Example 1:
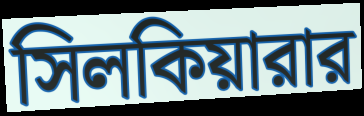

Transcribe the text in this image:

সিলকিয়ারার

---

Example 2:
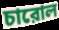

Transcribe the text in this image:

চারোল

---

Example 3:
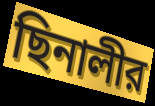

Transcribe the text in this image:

ছিনালীর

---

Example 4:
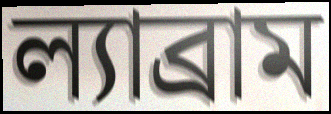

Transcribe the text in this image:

ল্যাব্রাম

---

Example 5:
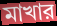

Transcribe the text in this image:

মাখার